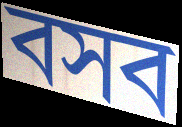
বসব